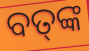
ବତ୍‍ଙ୍କ